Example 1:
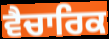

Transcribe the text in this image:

ਵੈਚਾਰਿਕ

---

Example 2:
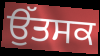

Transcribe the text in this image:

ਉੱਤਸਕ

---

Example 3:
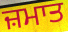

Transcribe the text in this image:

ਜ਼ਮਾਤ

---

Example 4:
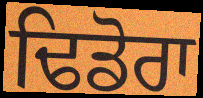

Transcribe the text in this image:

ਢਿਡੋਰਾ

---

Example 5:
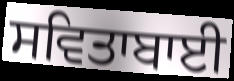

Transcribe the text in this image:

ਸਵਿਤਾਬਾਈ